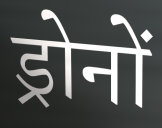
ड्रोनों